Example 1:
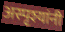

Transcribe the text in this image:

अस्पृश्यांनी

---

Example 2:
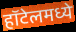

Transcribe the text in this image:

हॉटेलमध्ये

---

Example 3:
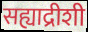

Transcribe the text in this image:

सह्याद्रीशी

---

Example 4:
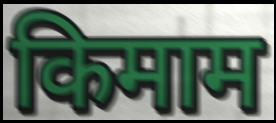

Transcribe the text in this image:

किमाम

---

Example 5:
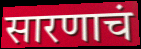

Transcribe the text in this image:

सारणाचं